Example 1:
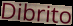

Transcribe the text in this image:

Dibrito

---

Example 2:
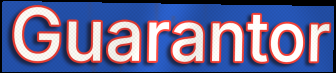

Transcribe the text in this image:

Guarantor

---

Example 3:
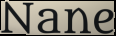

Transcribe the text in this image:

Nane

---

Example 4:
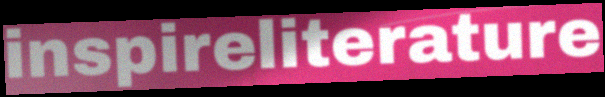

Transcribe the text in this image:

inspireliterature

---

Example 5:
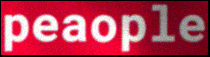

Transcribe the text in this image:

peaople